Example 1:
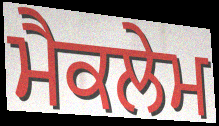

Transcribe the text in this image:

ਮੈਕਲੇਮ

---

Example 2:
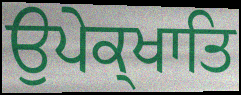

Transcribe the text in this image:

ਉਪੇਕ੍ਖਾਤਿ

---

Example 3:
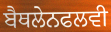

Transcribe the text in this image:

ਬੈਥਲੇਨਫਲਵੀ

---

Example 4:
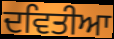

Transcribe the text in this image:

ਦਵਿਤੀਆ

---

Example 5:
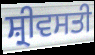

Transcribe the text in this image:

ਸ਼੍ਰੀਵਸਤੀ